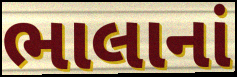
ભાલાનાં